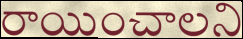
రాయించాలని